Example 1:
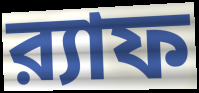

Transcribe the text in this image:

র‍্যাফ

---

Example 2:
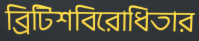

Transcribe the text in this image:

ব্রিটিশবিরোধিতার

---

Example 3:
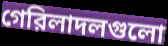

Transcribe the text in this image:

গেরিলাদলগুলো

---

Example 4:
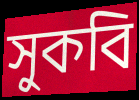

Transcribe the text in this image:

সুকবি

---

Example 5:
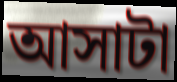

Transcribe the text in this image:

আসাটা